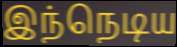
இந்நெடிய